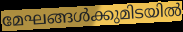
മേഘങ്ങൾക്കുമിടയിൽ